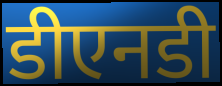
डीएनडी